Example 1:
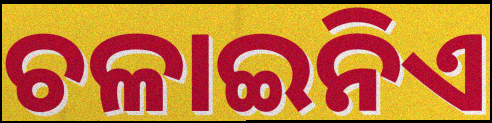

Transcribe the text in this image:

ଚଳାଇନିଏ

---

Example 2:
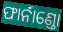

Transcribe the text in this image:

ଫାର୍ନାଣ୍ଡୋ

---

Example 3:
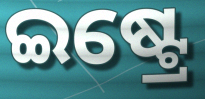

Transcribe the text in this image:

ଇଷ୍ଟ୍ରେ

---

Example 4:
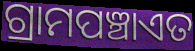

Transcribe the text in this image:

ଗ୍ରାମପଞ୍ଚାଏତ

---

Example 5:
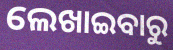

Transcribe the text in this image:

ଲେଖାଇବାରୁ